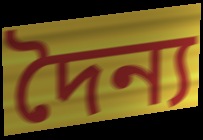
দৈন্য